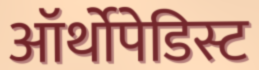
ऑर्थोपेडिस्ट